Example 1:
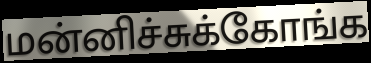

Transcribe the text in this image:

மன்னிச்சுக்கோங்க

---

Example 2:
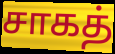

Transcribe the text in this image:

சாகத்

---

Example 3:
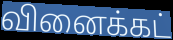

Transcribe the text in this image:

வினைக்கட்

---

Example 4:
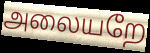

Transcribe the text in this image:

அலையறே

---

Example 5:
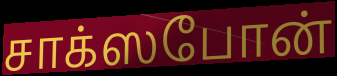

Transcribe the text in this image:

சாக்ஸபோன்